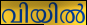
വിയിൽ